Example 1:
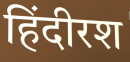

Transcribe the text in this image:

हिंदीरश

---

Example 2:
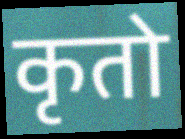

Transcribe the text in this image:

कृतो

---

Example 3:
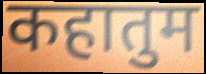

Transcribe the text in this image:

कहातुम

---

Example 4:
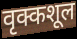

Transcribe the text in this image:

वृक्कशूल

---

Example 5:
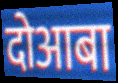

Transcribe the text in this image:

दोआबा